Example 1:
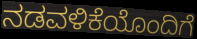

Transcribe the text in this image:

ನಡವಳಿಕೆಯೊಂದಿಗೆ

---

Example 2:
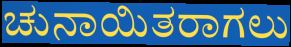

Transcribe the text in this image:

ಚುನಾಯಿತರಾಗಲು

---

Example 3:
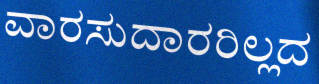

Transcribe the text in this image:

ವಾರಸುದಾರರಿಲ್ಲದ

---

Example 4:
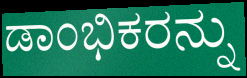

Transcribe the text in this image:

ಡಾಂಭಿಕರನ್ನು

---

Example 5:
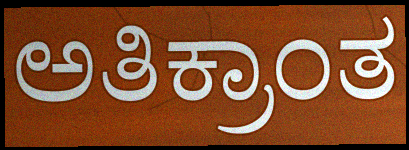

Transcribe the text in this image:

ಅತಿಕ್ರಾಂತ